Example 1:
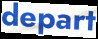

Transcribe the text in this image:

depart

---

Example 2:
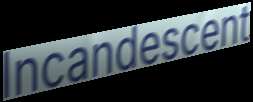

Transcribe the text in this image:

Incandescent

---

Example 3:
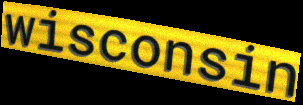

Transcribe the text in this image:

wisconsin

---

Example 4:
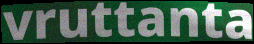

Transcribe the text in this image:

vruttanta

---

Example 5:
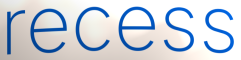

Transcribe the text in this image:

recess